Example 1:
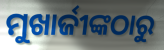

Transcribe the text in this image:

ମୁଖାର୍ଜୀଙ୍କଠାରୁ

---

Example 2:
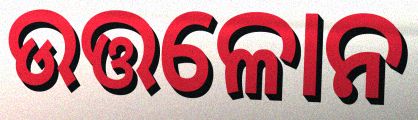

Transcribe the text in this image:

ଉତ୍ତଳୋନ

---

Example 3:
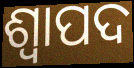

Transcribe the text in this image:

ଶ୍ୱାପଦ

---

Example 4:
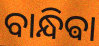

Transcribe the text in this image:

ବାନ୍ଧିଵା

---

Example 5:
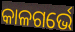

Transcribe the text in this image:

କାଳଗର୍ଭେ